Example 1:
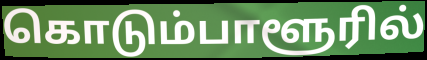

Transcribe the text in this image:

கொடும்பாளூரில்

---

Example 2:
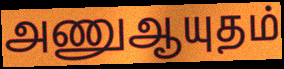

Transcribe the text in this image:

அணுஆயுதம்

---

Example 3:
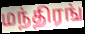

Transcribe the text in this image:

மந்திரங்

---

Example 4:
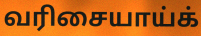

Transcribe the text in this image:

வரிசையாய்க்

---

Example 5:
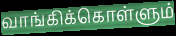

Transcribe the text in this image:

வாங்கிக்கொள்ளும்